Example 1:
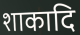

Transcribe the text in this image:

शाकादि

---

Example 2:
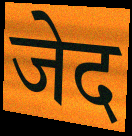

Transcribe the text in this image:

जेद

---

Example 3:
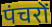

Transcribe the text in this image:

पंचरों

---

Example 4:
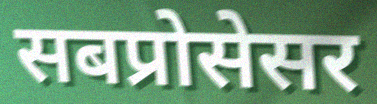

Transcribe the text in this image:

सबप्रोसेसर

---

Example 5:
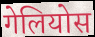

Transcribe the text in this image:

गेलियोस